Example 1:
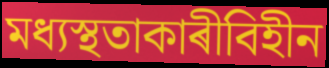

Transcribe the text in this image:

মধ্যস্থতাকাৰীবিহীন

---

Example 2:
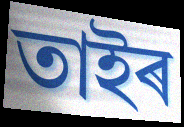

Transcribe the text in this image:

তাইৰ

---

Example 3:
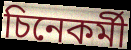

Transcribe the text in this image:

চিনেকৰ্মী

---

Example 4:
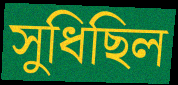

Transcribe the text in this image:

সুধিছিল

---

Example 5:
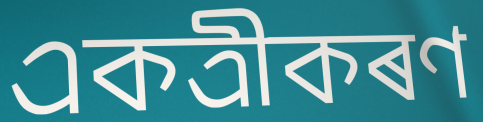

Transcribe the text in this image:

একত্ৰীকৰণ